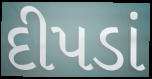
દીપડાં